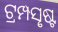
ଟ୍ରମ୍ପସୃଷ୍ଟ